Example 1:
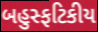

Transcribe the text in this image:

બહુસ્ફટિકીય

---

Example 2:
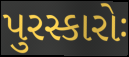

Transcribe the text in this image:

પુરસ્કારોઃ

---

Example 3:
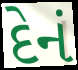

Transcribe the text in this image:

દેનં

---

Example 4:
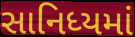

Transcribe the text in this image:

સાનિધ્યમાં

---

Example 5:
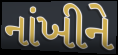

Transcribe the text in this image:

નાંખીને